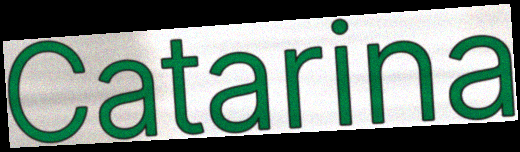
Catarina